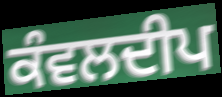
ਕੰਵਲਦੀਪ